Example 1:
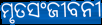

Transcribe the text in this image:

ମୃତସଂଜୀବନୀ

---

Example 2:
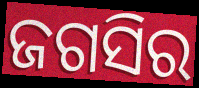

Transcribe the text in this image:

ଜଗସିର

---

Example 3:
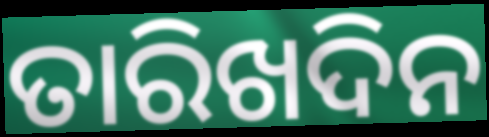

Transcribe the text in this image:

ତାରିଖଦିନ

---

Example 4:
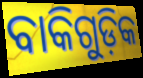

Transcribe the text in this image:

ବାକିଗୁଡ଼ିକ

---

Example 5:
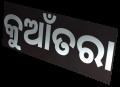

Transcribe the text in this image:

କୁଆଁତରା